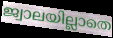
ജ്വാലയില്ലാതെ